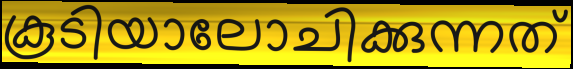
കൂടിയാലോചിക്കുന്നത്